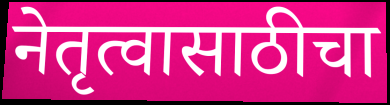
नेतृत्वासाठीचा